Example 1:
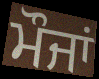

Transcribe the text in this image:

ਮੌਜਾਂ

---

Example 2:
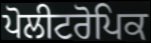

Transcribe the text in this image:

ਪੋਲੀਟਰੋਪਿਕ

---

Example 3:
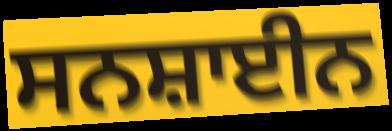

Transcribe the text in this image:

ਸਨਸ਼ਾਈਨ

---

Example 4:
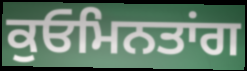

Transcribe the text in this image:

ਕੁਓਮਿਨਤਾਂਗ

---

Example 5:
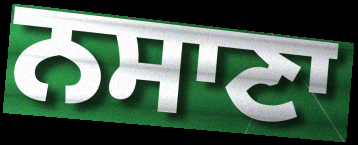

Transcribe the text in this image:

ਨਸਾਣਾ